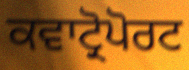
ਕਵਾਟ੍ਰੋਪੋਰਟ